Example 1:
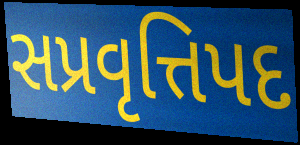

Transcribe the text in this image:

સપ્રવૃત્તિપદ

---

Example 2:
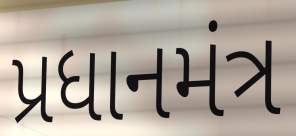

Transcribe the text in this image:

પ્રધાનમંત્ર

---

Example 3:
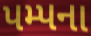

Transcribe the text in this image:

પમ્પના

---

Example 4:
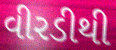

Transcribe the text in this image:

વીરડીથી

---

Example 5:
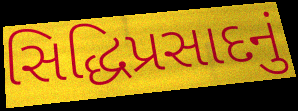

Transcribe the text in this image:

સિદ્ધિપ્રસાદનું